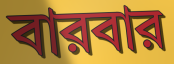
বারবার